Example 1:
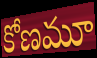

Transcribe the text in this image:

కోణమూ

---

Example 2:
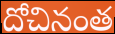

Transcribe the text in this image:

దోచినంత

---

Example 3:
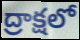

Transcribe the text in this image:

ద్రాక్షలో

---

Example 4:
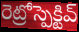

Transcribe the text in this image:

రెట్రోస్పెక్టివ్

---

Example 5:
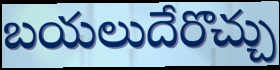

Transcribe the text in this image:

బయలుదేరొచ్చు